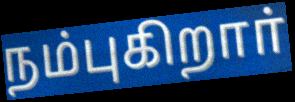
நம்புகிறார்